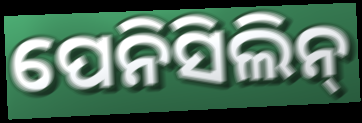
ପେନିସିଲିନ୍